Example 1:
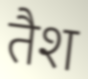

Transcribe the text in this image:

तैश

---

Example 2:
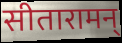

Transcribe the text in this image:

सीतारामन्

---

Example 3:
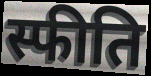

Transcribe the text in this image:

स्फीति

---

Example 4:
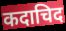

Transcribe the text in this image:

कदाचिद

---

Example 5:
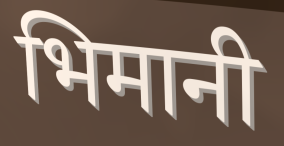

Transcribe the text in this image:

भिमानी